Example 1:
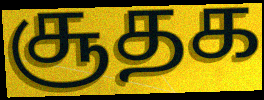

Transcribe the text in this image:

சூதக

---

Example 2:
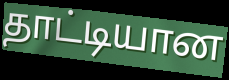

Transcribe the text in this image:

தாட்டியான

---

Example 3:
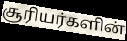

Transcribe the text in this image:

சூரியர்களின்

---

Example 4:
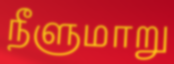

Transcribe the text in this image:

நீளுமாறு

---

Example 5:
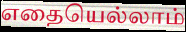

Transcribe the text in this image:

எதையெல்லாம்